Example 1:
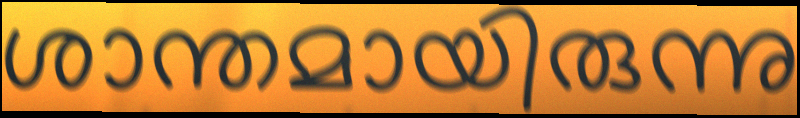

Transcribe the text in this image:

ശാന്തമായിരുന്നു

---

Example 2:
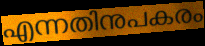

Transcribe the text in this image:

എന്നതിനുപകരം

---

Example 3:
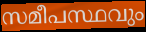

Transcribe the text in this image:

സമീപസ്ഥവും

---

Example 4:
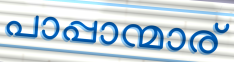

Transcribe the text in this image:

പാപ്പാന്മാര്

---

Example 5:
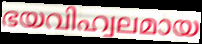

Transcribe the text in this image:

ഭയവിഹ്വലമായ